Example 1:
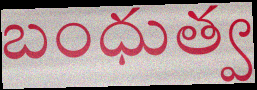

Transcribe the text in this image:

బంధుత్వ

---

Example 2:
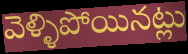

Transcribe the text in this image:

వెళ్ళిపోయినట్లు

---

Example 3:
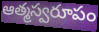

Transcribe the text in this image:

ఆత్మస్వరూపం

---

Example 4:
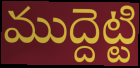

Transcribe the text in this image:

ముద్దెట్టి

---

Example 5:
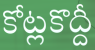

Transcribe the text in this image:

కోట్లకొద్దీ